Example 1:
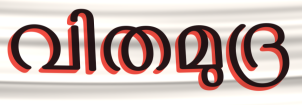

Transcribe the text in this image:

വിതമുദ്ര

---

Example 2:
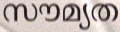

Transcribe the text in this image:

സൗമ്യത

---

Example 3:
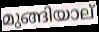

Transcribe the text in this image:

മുങ്ങിയാല്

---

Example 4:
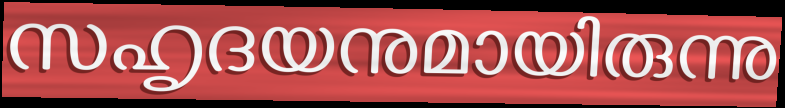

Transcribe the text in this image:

സഹൃദയനുമായിരുന്നു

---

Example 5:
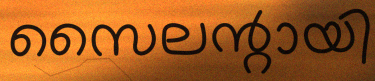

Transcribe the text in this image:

സൈലന്റായി